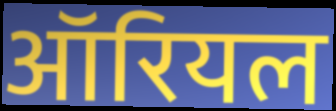
ऑरियल